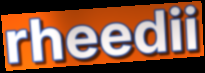
rheedii